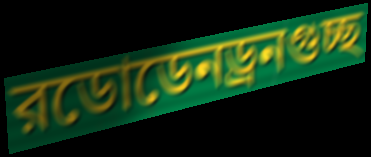
রডোডেনড্রনগুচ্ছ